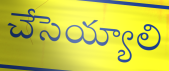
చేసెయ్యాలి